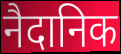
नैदानिक